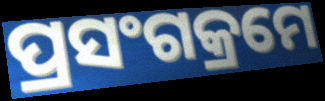
ପ୍ରସଂଗକ୍ରମେ